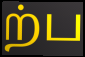
ற்ப